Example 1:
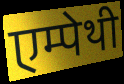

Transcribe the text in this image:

एम्पेथी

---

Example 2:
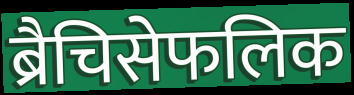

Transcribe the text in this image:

ब्रैचिसेफलिक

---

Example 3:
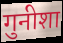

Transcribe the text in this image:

गुनीशा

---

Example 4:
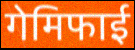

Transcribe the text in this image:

गेमिफाई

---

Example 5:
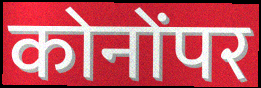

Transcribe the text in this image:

कोनोंपर